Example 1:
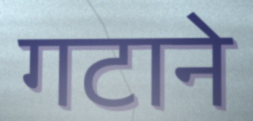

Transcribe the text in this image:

गटाने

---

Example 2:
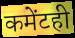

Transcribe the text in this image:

कमेंटही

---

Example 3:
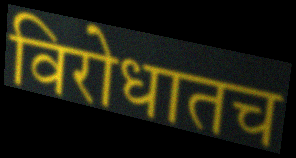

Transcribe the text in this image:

विरोधातच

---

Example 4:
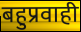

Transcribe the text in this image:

बहुप्रवाही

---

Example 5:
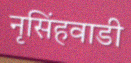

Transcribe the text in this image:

नृसिंहवाडी